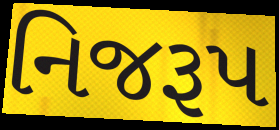
નિજરૂપ